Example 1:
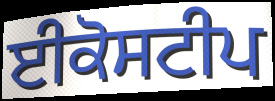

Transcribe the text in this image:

ਈਕੋਸਟੀਪ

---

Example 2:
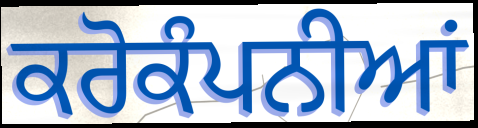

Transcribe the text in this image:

ਕਰੋਕੰਪਨੀਆਂ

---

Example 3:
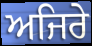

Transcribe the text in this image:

ਅਜਿਰੇ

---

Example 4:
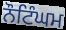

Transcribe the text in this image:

ਨੌਟਿੰਘਮ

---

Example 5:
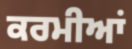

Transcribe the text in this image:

ਕਰਮੀਆਂ